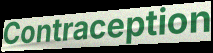
Contraception